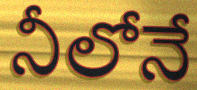
నీలోనే